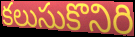
కలుసుకొనిరి